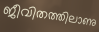
ജീവിതത്തിലാണു